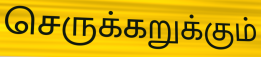
செருக்கறுக்கும்